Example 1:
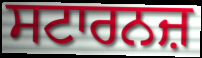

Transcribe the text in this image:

ਸਟਾਰਨਜ਼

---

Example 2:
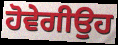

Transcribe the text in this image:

ਹੋਵੇਗੀਉਹ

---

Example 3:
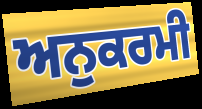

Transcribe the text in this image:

ਅਨੁਕਰਮੀ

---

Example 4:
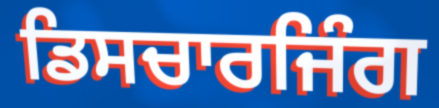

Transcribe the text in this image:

ਡਿਸਚਾਰਜਿੰਗ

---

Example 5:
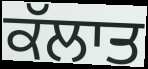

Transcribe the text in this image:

ਕੱਲਾਤ